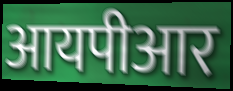
आयपीआर